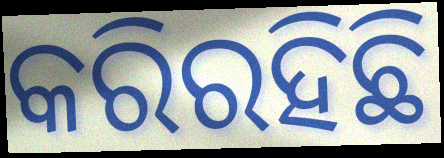
କରିରହିଛି